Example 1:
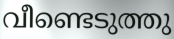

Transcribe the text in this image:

വീണ്ടെടുത്തു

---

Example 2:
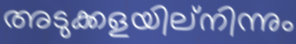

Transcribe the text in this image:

അടുക്കളയില്നിന്നും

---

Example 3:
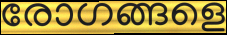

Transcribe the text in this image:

രോഗങ്ങളെ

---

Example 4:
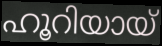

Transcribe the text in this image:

ഹൂറിയായ്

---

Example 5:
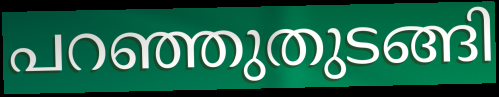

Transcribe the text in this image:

പറഞ്ഞുതുടങ്ങി